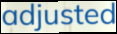
adjusted